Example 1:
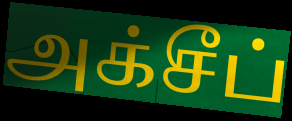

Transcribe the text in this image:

அக்சீப்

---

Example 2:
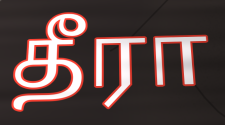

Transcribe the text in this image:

தீரா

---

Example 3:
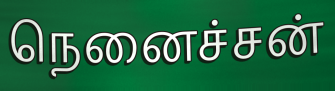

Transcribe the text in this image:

நெனைச்சன்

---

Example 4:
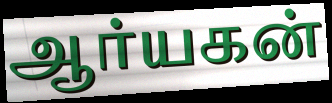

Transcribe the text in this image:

ஆர்யகன்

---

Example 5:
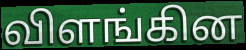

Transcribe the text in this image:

விளங்கின